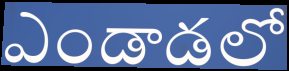
ఎండాడలో